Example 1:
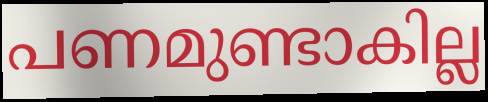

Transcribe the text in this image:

പണമുണ്ടാകില്ല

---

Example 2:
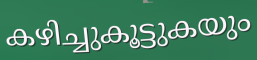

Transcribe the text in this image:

കഴിച്ചുകൂട്ടുകയും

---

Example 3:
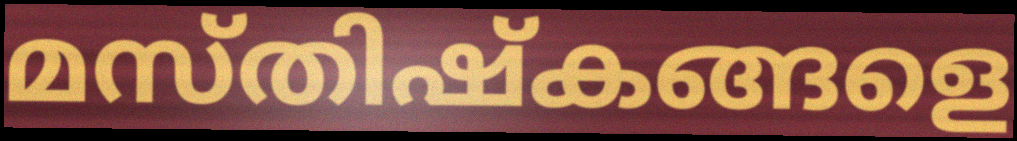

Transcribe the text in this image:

മസ്തിഷ്കങ്ങളെ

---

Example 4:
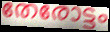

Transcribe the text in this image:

തേരോട്ടം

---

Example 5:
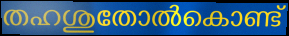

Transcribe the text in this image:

തഹശുതോൽകൊണ്ട്